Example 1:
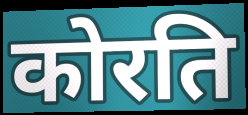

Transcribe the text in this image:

कोरति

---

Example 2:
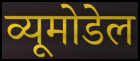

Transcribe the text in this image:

व्यूमोडेल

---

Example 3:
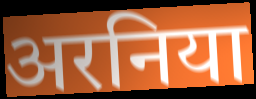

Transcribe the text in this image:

अरनिया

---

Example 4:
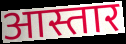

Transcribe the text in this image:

आस्तार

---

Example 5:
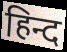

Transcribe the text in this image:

हिन्द